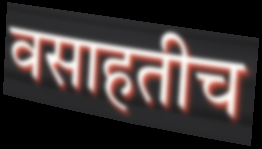
वसाहतीच